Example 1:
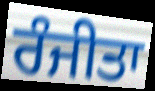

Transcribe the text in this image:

ਰੰਜੀਤਾ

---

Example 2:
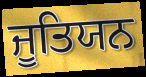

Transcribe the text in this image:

ਜੂਤਿਯਨ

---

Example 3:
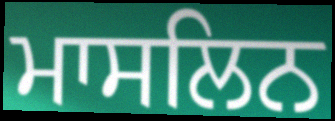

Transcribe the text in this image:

ਮਾਸਲਿਨ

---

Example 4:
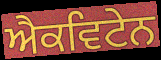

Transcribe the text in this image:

ਐਕਵਿਟੇਨ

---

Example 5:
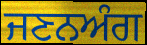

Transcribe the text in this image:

ਜਣਨਅੰਗ